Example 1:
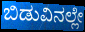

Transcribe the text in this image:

ಬಿಡುವಿನಲ್ಲೇ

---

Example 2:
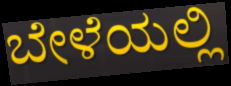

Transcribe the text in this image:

ಬೇಳೆಯಲ್ಲಿ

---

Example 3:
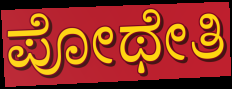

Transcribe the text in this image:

ಪೋಥೇತಿ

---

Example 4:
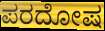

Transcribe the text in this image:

ಪರದೋಷ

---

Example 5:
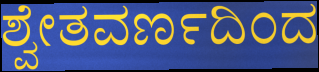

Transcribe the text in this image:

ಶ್ವೇತವರ್ಣದಿಂದ